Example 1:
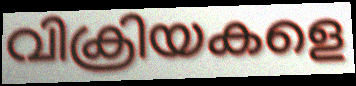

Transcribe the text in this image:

വിക്രിയകളെ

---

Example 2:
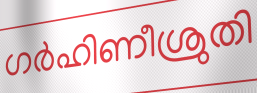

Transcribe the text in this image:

ഗർഹിണീശ്രുതി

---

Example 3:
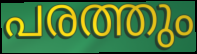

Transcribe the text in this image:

പരത്തും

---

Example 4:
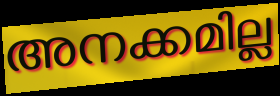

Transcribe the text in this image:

അനക്കമില്ല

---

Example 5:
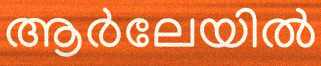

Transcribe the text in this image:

ആർലേയിൽ